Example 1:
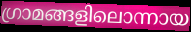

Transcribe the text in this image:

ഗ്രാമങ്ങളിലൊന്നായ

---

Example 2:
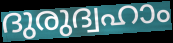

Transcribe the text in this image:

ദുരുദ്വഹാം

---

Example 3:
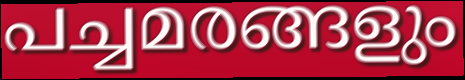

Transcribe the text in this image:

പച്ചമരങ്ങളും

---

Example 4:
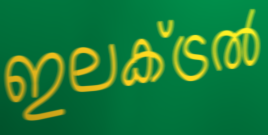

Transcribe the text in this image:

ഇലക്ട്രൽ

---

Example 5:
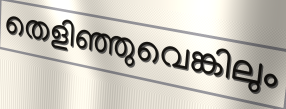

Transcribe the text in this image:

തെളിഞ്ഞുവെങ്കിലും